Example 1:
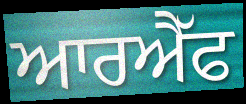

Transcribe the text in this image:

ਆਰਐੱਫ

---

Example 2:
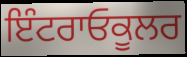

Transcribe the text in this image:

ਇੰਟਰਾਓਕੂਲਰ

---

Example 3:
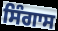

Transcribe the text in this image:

ਸਿੰਗਾਸ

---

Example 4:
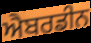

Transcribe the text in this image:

ਐਬਰਡੀਨ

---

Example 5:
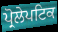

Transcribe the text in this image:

ਪ੍ਰੋਲੇਪਟਿਕ